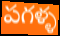
పగళ్ళ